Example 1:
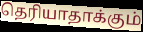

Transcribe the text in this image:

தெரியாதாக்கும்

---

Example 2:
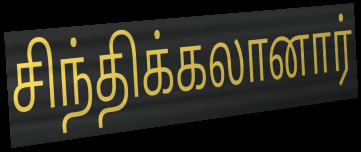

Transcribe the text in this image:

சிந்திக்கலானார்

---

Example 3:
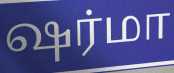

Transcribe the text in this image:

ஷர்மா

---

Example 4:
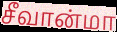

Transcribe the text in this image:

சீவான்மா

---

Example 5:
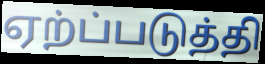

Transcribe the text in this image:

ஏற்ப்படுத்தி